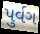
પુર્વગ